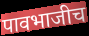
पावभाजीच